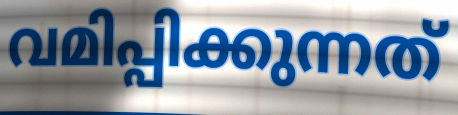
വമിപ്പിക്കുന്നത്